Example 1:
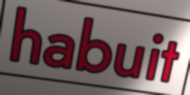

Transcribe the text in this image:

habuit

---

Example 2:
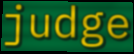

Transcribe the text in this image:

judge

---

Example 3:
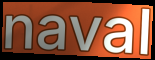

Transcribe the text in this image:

naval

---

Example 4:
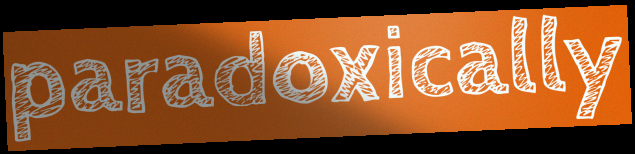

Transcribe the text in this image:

paradoxically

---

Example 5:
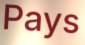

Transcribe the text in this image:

Pays